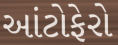
આંટોફેરો